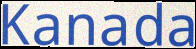
Kanada